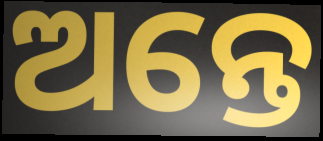
ଅନ୍ତେ